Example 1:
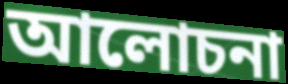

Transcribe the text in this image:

আলোচনা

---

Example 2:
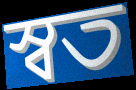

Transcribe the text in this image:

স্বত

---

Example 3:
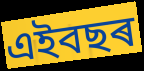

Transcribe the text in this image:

এইবছৰ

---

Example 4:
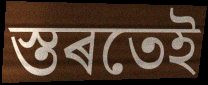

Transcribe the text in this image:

স্তৰতেই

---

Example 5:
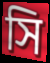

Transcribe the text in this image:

সি